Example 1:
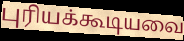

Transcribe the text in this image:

புரியக்கூடியவை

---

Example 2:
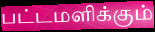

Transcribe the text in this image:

பட்டமளிக்கும்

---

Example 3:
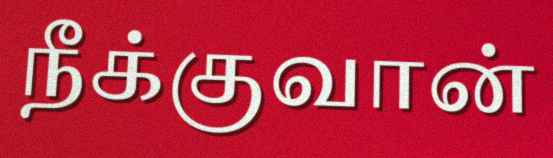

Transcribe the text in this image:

நீக்குவான்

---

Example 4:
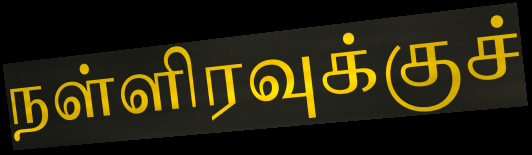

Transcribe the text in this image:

நள்ளிரவுக்குச்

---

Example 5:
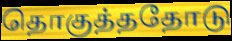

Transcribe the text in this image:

தொகுத்ததோடு